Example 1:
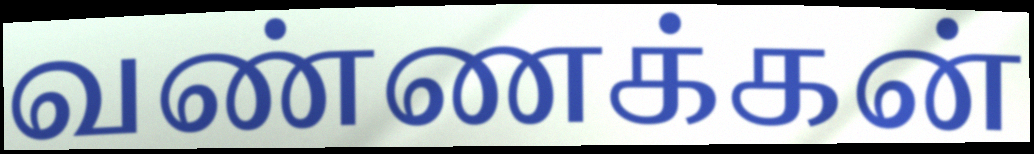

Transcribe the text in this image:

வண்ணக்கன்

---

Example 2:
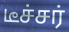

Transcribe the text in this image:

டீச்சர்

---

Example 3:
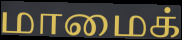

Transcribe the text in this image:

மாமைக்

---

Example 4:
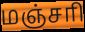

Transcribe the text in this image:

மஞ்சரி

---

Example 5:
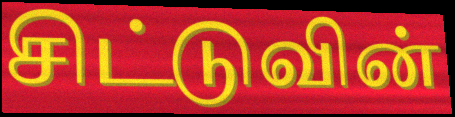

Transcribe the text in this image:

சிட்டுவின்